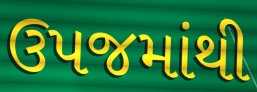
ઉપજમાંથી